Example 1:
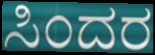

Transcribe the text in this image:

ಸಿಂದರ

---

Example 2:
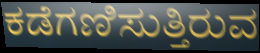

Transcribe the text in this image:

ಕಡೆಗಣಿಸುತ್ತಿರುವ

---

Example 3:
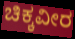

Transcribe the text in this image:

ಚಿಕ್ಕವೀರ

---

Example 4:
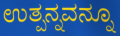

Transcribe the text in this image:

ಉತ್ಪನ್ನವನ್ನೂ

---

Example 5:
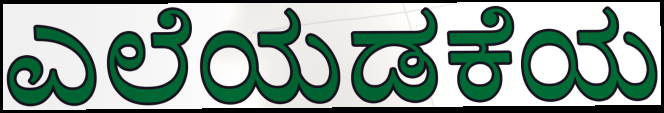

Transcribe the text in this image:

ಎಲೆಯಡಕೆಯ